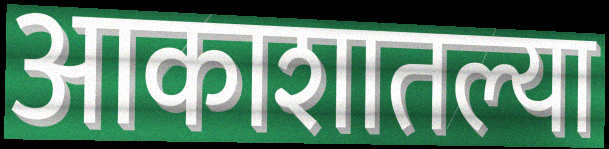
आकाशातल्या